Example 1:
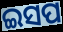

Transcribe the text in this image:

ଇସପ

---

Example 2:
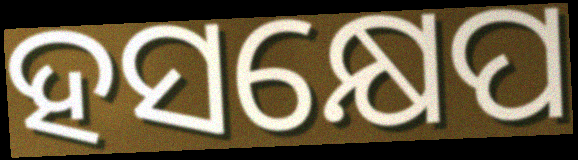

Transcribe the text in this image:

ହସକ୍ଷେପ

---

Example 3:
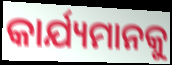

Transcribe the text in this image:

କାର୍ଯ୍ୟମାନକୁ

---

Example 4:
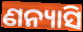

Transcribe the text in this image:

ଣନ୍ୟାସି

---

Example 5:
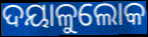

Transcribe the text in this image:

ଦୟାଳୁଲୋକ